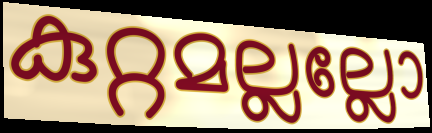
കുറ്റമല്ലല്ലോ